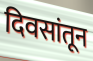
दिवसांतून